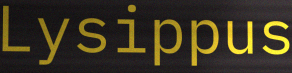
Lysippus